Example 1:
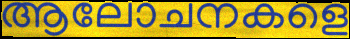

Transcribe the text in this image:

ആലോചനകളെ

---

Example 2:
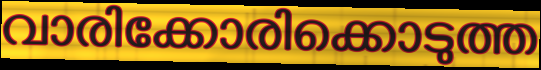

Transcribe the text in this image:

വാരിക്കോരിക്കൊടുത്ത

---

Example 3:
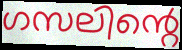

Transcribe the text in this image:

ഗസലിന്റെ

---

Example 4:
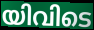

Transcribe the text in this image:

യിവിടെ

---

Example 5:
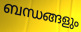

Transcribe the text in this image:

ബന്ധങ്ങളും